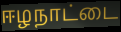
ஈழநாட்டை